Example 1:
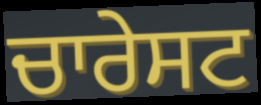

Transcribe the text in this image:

ਚਾਰੇਸਟ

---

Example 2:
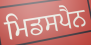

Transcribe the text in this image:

ਮਿਡਸਪੈਨ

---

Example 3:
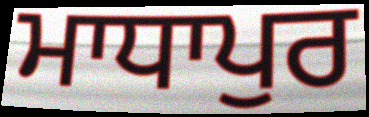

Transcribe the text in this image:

ਮਾਧਾਪੁਰ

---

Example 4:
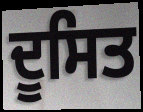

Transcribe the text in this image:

ਦੂਸਿਤ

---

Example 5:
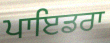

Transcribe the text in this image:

ਪਾਇਡਰਾ